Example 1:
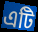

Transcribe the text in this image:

এটি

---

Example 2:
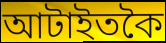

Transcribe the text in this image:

আটাইতকৈ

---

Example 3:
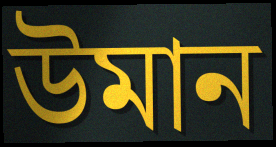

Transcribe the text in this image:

উমান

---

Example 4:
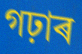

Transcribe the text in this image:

গঢ়াৰ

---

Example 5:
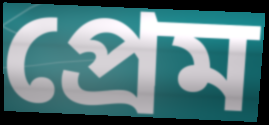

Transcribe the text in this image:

প্ৰেম